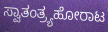
ಸ್ವಾತಂತ್ರ್ಯಹೋರಾಟ